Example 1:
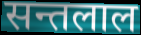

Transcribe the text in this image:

सन्तलाल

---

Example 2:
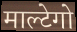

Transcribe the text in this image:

माल्टेगो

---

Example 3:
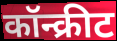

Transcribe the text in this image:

कॉन्क्रीट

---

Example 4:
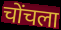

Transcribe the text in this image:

चोंचला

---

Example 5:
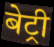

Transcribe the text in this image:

बेट्री